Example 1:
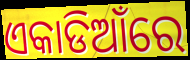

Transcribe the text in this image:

ଏକାଡିଆଁରେ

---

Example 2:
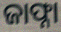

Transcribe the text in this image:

ଜାଫ୍ନା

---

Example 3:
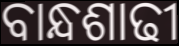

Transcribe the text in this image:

ବାନ୍ଧଶାଢୀ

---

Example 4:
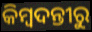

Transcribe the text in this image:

କିମ୍ବଦନ୍ତୀରୁ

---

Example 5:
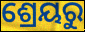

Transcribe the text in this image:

ଶ୍ରେୟରୁ